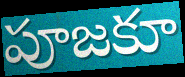
పూజకూ